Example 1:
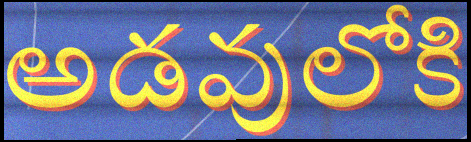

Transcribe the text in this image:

అడవులోకి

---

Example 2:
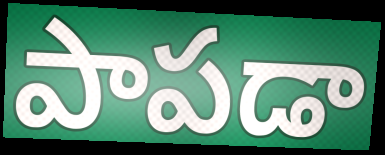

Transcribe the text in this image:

పాపడా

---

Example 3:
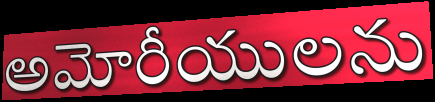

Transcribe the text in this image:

అమోరీయులను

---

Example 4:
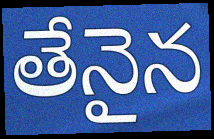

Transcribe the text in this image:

తేనైన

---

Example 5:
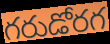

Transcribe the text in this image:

గరుడోరగ